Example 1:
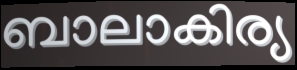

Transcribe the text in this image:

ബാലാകിര്യ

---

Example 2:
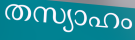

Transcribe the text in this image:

തസ്യാഹം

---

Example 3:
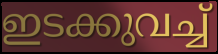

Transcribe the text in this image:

ഇടക്കുവച്ച്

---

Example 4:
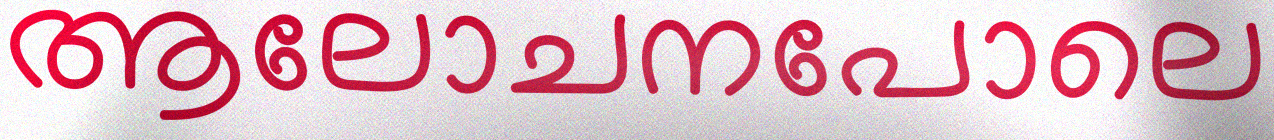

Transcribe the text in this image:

ആലോചനപോലെ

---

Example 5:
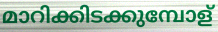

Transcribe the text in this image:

മാറിക്കിടക്കുമ്പോള്